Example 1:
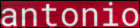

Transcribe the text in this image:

antonio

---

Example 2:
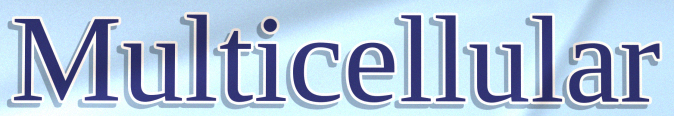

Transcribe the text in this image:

Multicellular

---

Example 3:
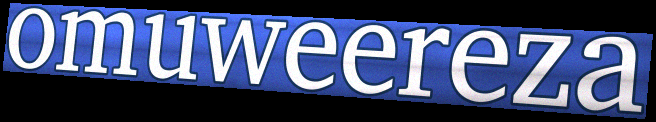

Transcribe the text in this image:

omuweereza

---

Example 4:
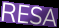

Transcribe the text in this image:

RESA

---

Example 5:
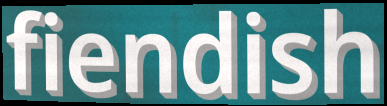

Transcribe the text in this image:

fiendish